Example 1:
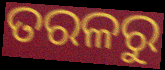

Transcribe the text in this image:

ତରଳରୁ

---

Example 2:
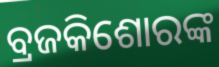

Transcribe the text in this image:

ବ୍ରଜକିଶୋରଙ୍କ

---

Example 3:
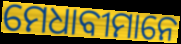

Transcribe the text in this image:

ମେଧାବୀମାନେ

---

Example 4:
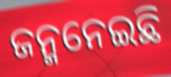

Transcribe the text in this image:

ଜନ୍ମନେଇଛି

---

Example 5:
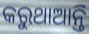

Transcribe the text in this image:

କରୁଥାଆନ୍ତି